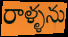
రాళ్ళను